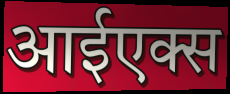
आईएक्स